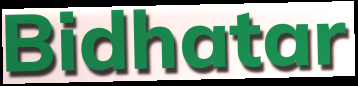
Bidhatar